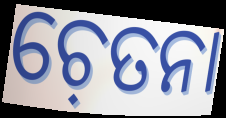
ଚ଼େତନା